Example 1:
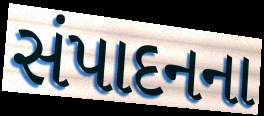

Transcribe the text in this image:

સંપાદનના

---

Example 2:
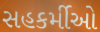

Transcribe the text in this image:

સહકર્મીઓ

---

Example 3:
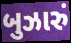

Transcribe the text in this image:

બુઝારું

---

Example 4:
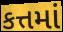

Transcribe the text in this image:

કત્તમાં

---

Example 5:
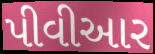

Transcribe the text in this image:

પીવીઆર